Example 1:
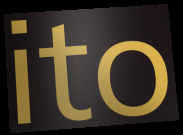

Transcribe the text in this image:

ito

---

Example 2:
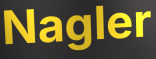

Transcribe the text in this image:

Nagler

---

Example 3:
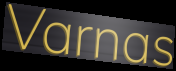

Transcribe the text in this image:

Varnas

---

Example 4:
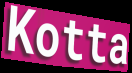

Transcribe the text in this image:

Kotta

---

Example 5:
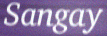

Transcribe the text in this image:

Sangay